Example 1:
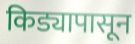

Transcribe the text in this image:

किड्यापासून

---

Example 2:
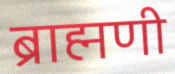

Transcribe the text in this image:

ब्राह्मणी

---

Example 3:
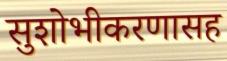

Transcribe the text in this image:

सुशोभीकरणासह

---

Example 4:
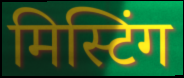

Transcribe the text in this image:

मिस्टिंग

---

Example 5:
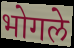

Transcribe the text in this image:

भोगले